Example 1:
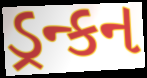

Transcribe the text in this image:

ડ્રન્કન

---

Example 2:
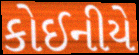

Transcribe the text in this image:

કોઈનીયે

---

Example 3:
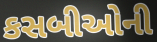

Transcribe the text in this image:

કસબીઓની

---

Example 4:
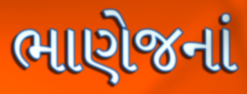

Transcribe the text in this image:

ભાણેજનાં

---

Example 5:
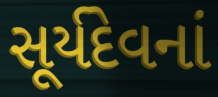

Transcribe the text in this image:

સૂર્યદેવનાં